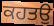
ਕਹਤਉ